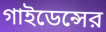
গাইডেন্সের